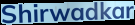
Shirwadkar